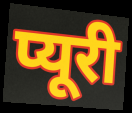
प्यूरी